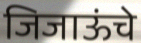
जिजाऊंचे